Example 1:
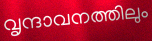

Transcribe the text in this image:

വൃന്ദാവനത്തിലും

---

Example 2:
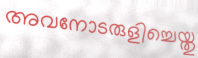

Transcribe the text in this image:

അവനോടരുളിച്ചെയ്തു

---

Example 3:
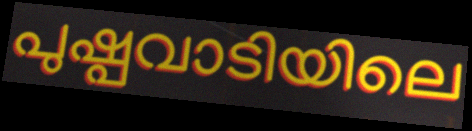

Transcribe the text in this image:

പുഷ്പവാടിയിലെ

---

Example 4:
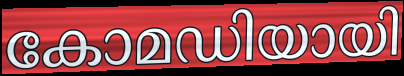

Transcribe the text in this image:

കോമഡിയായി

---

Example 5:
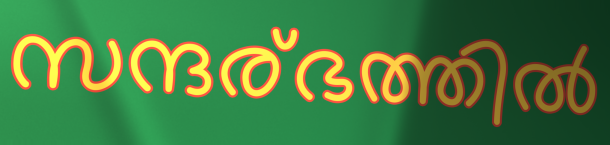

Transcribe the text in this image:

സന്ദര്ഭത്തിൽ